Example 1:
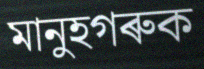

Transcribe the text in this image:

মানুহগৰুক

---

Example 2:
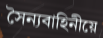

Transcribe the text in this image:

সৈন্যবাহিনীয়ে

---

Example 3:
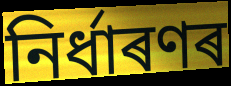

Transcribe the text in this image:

নিৰ্ধাৰণৰ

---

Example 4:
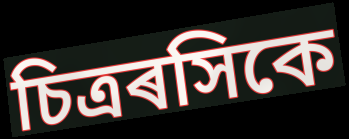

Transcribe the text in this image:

চিত্ৰৰসিকে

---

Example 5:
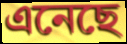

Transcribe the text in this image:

এনেছে